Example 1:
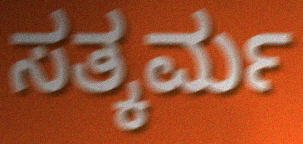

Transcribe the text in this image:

ಸತ್ಕರ್ಮ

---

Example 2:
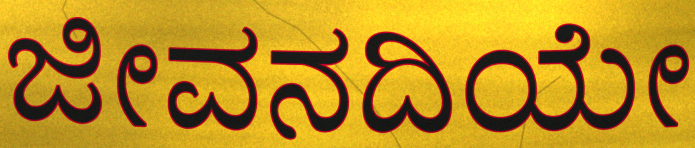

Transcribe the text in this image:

ಜೀವನದಿಯೇ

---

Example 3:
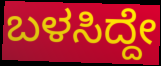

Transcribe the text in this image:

ಬಳಸಿದ್ದೇ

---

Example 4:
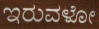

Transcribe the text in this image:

ಇರುವಳೋ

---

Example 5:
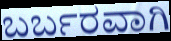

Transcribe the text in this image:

ಬರ್ಬರವಾಗಿ